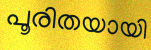
പൂരിതയായി